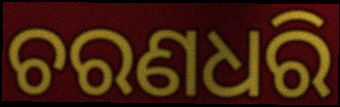
ଚରଣଧରି